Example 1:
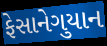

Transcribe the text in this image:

ફેસાનેગુયાન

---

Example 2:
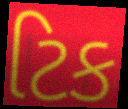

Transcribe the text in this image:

ટિક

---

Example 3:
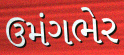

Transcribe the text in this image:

ઉમંગભેર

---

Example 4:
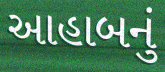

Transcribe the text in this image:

આહાબનું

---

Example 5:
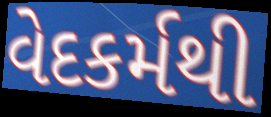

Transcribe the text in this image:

વેદકર્મથી